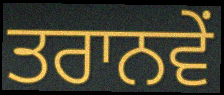
ਤਰਾਨਵੇਂ